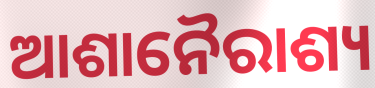
ଆଶାନୈରାଶ୍ୟ